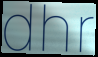
dhr